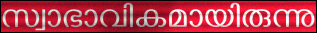
സ്വാഭാവികമായിരുന്നു